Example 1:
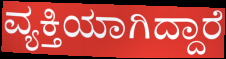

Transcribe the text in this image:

ವ್ಯಕ್ತಿಯಾಗಿದ್ದಾರೆ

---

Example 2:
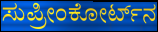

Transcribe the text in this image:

ಸುಪ್ರೀಂಕೋರ್ಟ್‌ನ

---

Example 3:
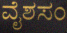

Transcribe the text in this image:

ವೈಶಸಂ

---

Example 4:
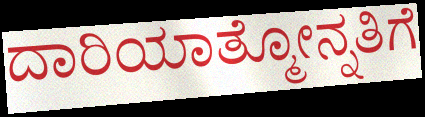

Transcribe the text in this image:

ದಾರಿಯಾತ್ಮೋನ್ನತಿಗೆ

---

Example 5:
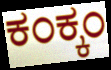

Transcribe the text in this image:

ಕಂಕ್ಕಂ